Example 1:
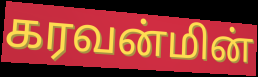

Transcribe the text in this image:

கரவன்மின்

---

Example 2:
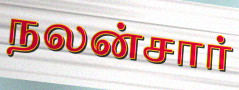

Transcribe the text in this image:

நலன்சார்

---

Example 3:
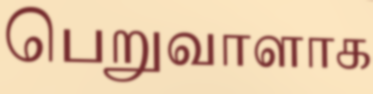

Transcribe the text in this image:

பெறுவாளாக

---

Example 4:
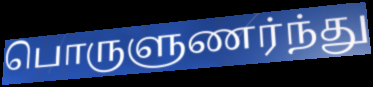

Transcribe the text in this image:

பொருளுணர்ந்து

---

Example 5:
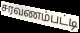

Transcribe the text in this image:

சரவணம்பட்டி